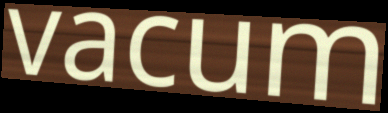
vacum